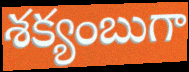
శక్యంబుగా